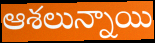
ఆశలున్నాయి